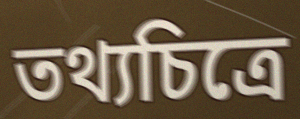
তথ্যচিত্রে